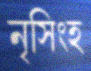
নৃসিংহ